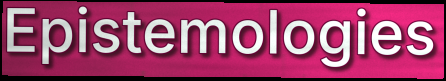
Epistemologies